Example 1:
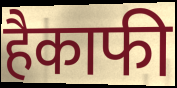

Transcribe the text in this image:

हैकाफी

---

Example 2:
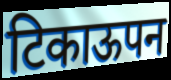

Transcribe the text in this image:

टिकाऊपन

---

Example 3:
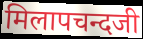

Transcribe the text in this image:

मिलापचन्दजी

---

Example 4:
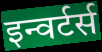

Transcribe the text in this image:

इन्वर्टर्स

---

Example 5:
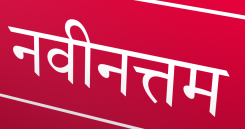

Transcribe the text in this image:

नवीनत्तम